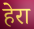
हेरा